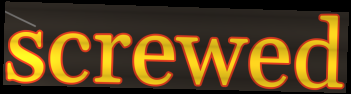
screwed